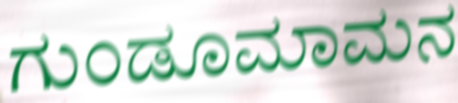
ಗುಂಡೂಮಾಮನ